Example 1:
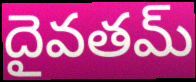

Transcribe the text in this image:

దైవతమ్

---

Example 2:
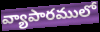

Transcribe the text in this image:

వ్యాపారములో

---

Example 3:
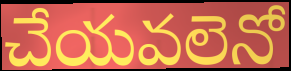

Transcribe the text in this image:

చేయవలెనో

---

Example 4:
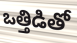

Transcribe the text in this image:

ఒత్తిడితో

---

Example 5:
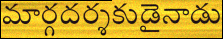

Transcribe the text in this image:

మార్గదర్శకుడైనాడు